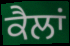
ਕੈਲਾਂ